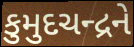
કુમુદચન્દ્રને